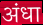
अंधा